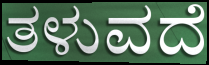
ತಳುವದೆ